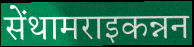
सेंथामराइकन्नन